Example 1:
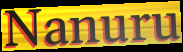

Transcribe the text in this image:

Nanuru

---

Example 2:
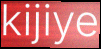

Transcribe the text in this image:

kijiye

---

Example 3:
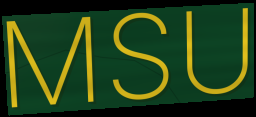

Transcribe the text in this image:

MSU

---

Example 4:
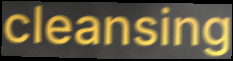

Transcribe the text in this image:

cleansing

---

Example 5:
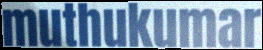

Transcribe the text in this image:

muthukumar